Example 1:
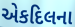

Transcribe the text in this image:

એકદિલના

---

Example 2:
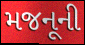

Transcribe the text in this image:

મજનૂની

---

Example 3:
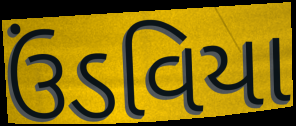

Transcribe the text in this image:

ઉંડવિયા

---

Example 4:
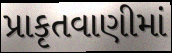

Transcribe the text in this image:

પ્રાકૃતવાણીમાં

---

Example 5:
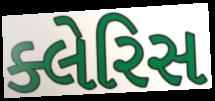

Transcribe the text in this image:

ક્લેરિસ